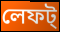
লেফট্